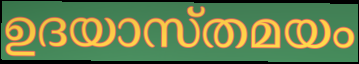
ഉദയാസ്തമയം